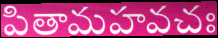
పితామహవచః